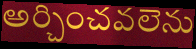
అర్చించవలెను